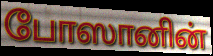
போஸானின்